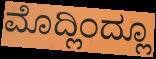
ಮೊದ್ಲಿಂದ್ಲೂ